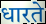
धारते